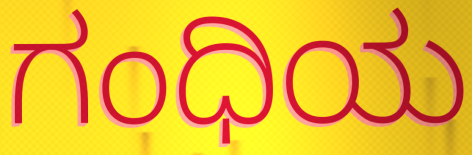
ಗಂಧಿಯ